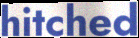
hitched